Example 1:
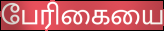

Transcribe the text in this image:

பேரிகையை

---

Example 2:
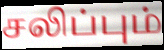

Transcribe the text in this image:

சலிப்பும்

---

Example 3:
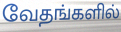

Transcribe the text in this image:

வேதங்களில்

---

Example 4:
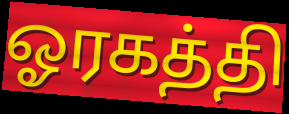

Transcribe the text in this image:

ஓரகத்தி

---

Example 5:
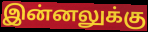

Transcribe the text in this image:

இன்னலுக்கு